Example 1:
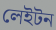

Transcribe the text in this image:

লেইটন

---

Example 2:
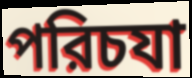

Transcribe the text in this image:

পরিচযা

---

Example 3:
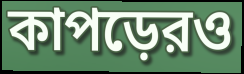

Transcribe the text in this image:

কাপড়েরও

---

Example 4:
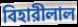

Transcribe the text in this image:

বিহারীলাল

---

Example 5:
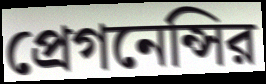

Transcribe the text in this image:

প্রেগনেন্সির